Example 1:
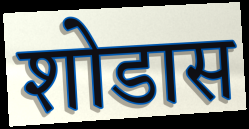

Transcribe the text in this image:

शोडास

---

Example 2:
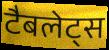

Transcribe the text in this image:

टैबलेट्स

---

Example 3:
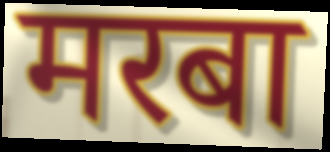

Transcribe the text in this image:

मरबा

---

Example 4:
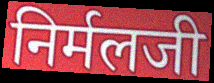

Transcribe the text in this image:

निर्मलजी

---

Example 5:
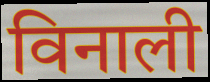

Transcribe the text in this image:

विनाली